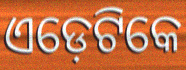
ଏଡ଼େଟିକେ